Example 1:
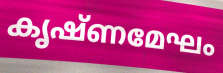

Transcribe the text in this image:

കൃഷ്ണമേഘം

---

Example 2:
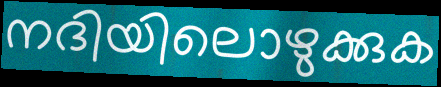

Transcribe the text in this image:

നദിയിലൊഴുക്കുക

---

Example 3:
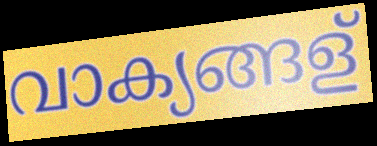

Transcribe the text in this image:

വാക്യങ്ങള്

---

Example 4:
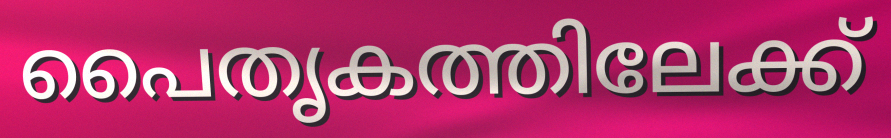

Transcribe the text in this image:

പൈതൃകത്തിലേക്ക്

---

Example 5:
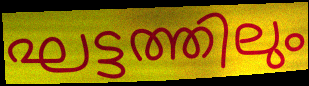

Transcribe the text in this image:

ഘട്ടത്തിലും